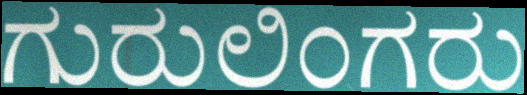
ಗುರುಲಿಂಗರು